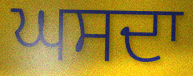
ਘਸਦਾ